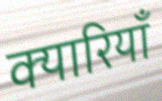
क्यारियाँ